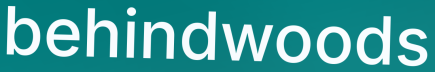
behindwoods